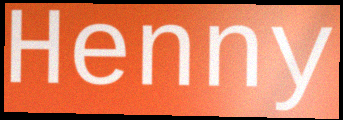
Henny